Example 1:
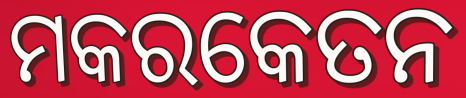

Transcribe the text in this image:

ମକରକେତନ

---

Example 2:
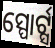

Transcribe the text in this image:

ସ୍ପୋର୍ଟ୍ସ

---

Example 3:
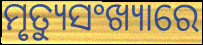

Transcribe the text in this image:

ମୃତ୍ୟୁସଂଖ୍ୟାରେ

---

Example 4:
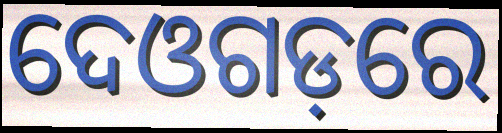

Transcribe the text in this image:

ଦେଓଗଡ଼ରେ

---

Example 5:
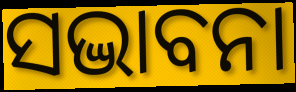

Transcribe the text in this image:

ସଦ୍ଭାବନା